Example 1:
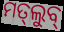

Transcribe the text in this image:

ମତ୍‌ଲୁବ୍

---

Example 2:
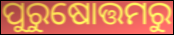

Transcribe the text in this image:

ପୁରୁଷୋତ୍ତମରୁ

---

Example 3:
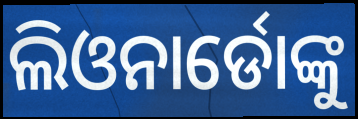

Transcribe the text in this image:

ଲିଓନାର୍ଡୋଙ୍କୁ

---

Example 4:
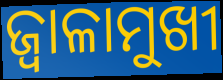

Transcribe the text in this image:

ଜ୍ୱାଳାମୁଖୀ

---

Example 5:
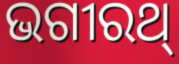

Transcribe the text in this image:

ଭଗୀରଥ୍